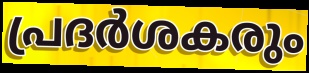
പ്രദർശകരും